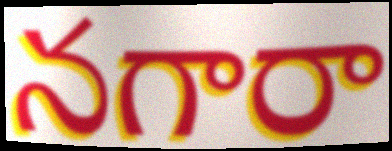
నగారా